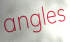
angles